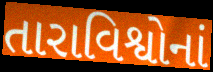
તારાવિશ્વોનાં